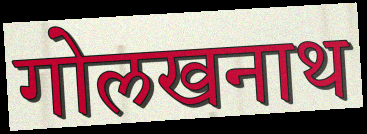
गोलखनाथ